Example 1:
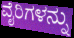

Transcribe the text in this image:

ವೈರಿಗಳನ್ನು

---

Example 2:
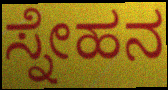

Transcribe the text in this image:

ಸ್ನೇಹನ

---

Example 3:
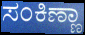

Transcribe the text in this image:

ಸಂಕಿಣ್ಣಾ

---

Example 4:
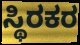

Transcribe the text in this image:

ಸ್ಥಿರಕರ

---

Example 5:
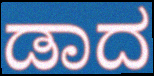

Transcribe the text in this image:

ಡಾದ